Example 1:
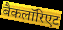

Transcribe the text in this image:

बैकलॉरिएट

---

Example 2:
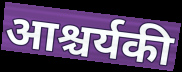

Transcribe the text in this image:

आश्चर्यकी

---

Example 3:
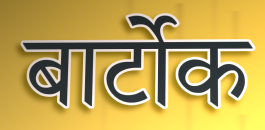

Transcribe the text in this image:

बार्टोक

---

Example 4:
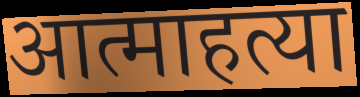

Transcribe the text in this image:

आत्माहत्या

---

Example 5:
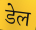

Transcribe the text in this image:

डेल